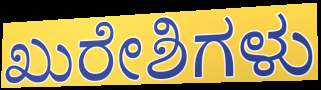
ಖುರೇಶಿಗಳು